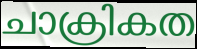
ചാക്രികത